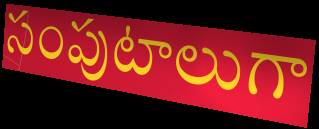
సంపుటాలుగా